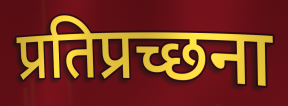
प्रतिप्रच्छना